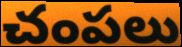
చంపలు